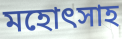
মহোৎসাহ